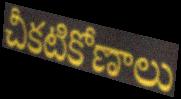
చీకటికోణాలు